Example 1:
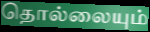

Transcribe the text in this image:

தொல்லையும்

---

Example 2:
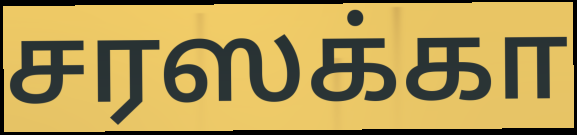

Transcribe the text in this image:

சரஸக்கா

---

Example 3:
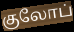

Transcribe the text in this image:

குலோப்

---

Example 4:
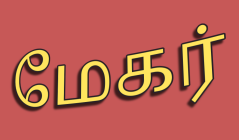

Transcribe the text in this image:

மேகர்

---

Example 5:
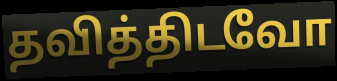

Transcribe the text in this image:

தவித்திடவோ